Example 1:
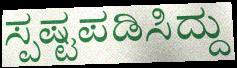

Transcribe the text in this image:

ಸ್ಪಷ್ಟಪಡಿಸಿದ್ದು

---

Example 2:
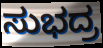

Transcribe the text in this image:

ಸುಭದ್ರ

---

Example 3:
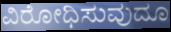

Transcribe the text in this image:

ವಿರೋಧಿಸುವುದೂ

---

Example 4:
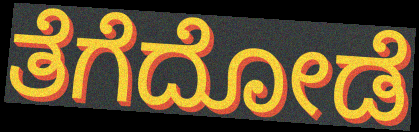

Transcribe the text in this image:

ತೆಗೆದೋಡೆ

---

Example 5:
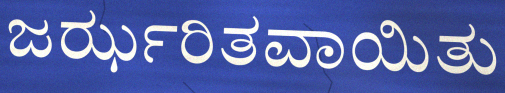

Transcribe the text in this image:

ಜರ್ಝರಿತವಾಯಿತು